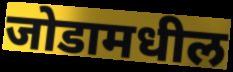
जोडामधील